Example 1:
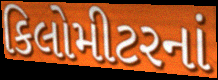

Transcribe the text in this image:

કિલોમીટરનાં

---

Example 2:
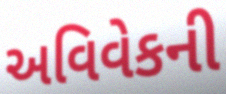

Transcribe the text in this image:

અવિવેકની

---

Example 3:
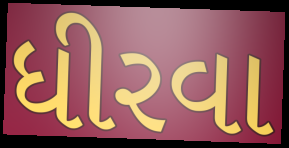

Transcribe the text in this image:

ધીરવા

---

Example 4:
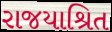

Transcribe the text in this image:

રાજયાશ્રિત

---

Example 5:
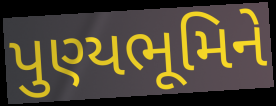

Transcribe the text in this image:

પુણ્યભૂમિને